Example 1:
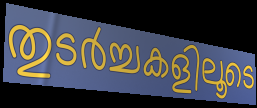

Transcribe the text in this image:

തുടർച്ചകളിലൂടെ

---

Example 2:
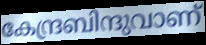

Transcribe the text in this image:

കേന്ദ്രബിന്ദുവാണ്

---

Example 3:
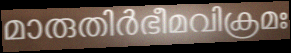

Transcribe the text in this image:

മാരുതിർഭീമവിക്രമഃ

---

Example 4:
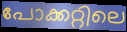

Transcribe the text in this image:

പോക്കറ്റിലെ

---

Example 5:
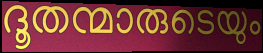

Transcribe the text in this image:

ദൂതന്മാരുടെയും